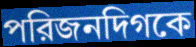
পরিজনদিগকে